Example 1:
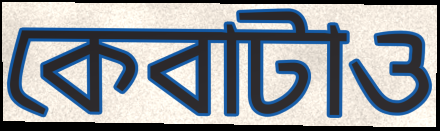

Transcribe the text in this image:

কেবাটাও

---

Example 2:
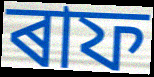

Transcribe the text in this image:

ৰাফ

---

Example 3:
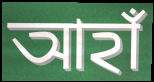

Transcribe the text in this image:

আহাঁ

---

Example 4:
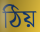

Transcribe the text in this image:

ঠিয়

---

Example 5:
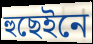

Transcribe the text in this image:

হুছেইনে